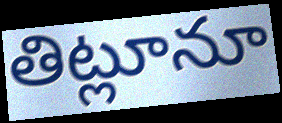
తిట్లూనూ